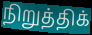
நிறுத்திக்